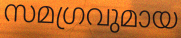
സമഗ്രവുമായ